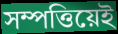
সম্পত্তিয়েই